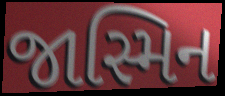
જાસ્મિન